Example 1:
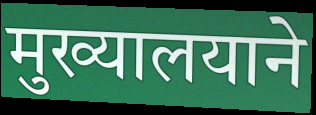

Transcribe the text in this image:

मुख्यालयाने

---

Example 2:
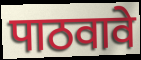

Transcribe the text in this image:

पाठवावे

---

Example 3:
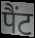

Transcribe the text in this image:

पैंट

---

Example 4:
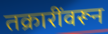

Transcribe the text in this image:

तक्रारींवरून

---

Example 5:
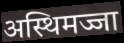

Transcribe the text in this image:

अस्थिमज्जा